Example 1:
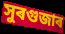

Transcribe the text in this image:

সুৰগুজাৰ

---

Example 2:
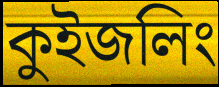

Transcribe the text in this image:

কুইজলিং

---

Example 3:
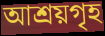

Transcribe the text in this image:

আশ্ৰয়গৃহ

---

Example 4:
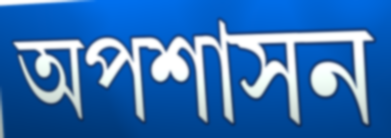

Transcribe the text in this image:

অপশাসন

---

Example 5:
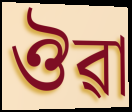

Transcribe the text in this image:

ঔৱা